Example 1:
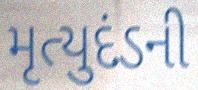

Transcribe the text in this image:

મૃત્યુદંડની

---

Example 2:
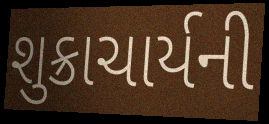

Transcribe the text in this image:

શુક્રાચાર્યની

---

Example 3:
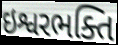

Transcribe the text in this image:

ઇશ્વરભક્તિ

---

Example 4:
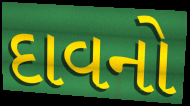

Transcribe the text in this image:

દાવનો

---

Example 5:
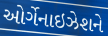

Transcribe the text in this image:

ઓર્ગેનાઇઝેશને